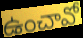
ఉంచావో